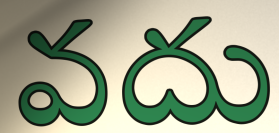
వదు